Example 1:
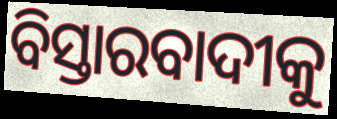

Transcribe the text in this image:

ବିସ୍ତାରବାଦୀକୁ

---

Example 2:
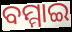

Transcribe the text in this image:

ବମ୍ମାଇ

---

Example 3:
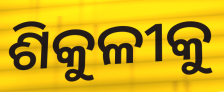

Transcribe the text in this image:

ଶିକୁଳୀକୁ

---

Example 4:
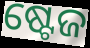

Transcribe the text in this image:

ଷ୍ଟେଜ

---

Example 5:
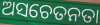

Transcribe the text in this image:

ଅସଚେତନତା